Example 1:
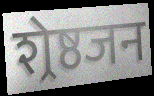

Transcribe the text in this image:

श्रेष्ठजन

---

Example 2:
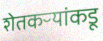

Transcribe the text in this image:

शेतकऱ्यांकडू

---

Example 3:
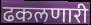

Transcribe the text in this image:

ढकलणारी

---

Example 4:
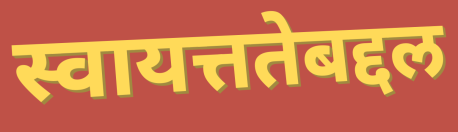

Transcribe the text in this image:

स्वायत्ततेबद्दल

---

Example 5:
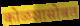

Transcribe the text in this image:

कोळशासोबत